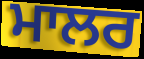
ਮਾਲਰ